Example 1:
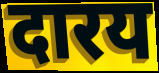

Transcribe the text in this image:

दारय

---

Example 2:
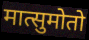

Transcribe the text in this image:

मात्सुमोतो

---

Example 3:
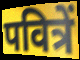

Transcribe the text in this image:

पवित्रें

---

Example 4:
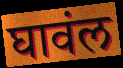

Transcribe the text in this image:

घावंल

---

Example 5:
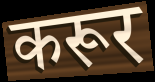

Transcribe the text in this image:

करूर